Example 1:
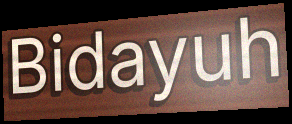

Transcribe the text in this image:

Bidayuh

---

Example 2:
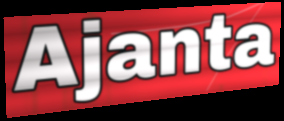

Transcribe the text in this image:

Ajanta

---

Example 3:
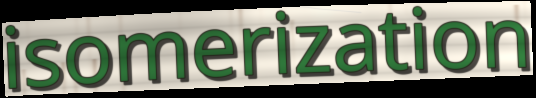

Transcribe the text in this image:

isomerization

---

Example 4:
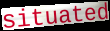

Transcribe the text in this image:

situated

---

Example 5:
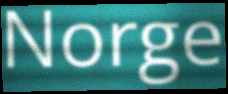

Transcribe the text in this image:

Norge